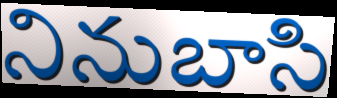
నినుబాసి